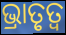
ଭ୍ରାତୃତ୍ଵ